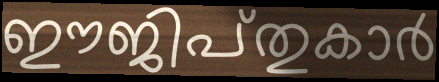
ഈജിപ്‌തുകാർ